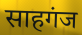
साहगंज